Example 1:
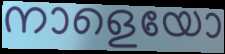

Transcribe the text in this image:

നാളെയോ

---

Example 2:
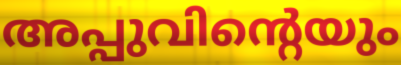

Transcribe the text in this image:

അപ്പുവിന്റെയും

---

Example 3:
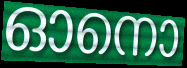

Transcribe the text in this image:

ഓനൊ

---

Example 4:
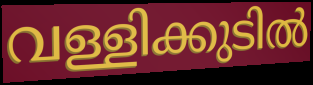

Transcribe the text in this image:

വള്ളിക്കുടിൽ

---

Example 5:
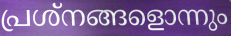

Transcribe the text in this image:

പ്രശ്നങ്ങളൊന്നും